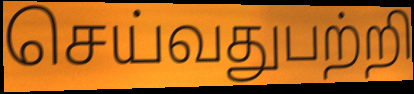
செய்வதுபற்றி